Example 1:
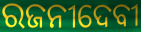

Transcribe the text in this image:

ରଜନୀଦେବୀ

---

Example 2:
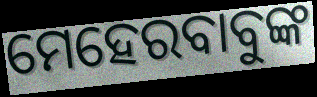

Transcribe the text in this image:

ମେହେରବାବୁଙ୍କ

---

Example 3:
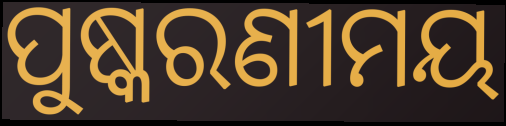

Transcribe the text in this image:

ପୁଷ୍କରଣୀମୟ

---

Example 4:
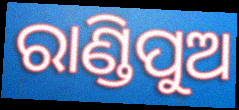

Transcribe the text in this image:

ରାଣ୍ଡିପୁଅ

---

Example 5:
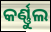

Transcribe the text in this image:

କର୍ଣ୍ଣୁଲ